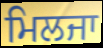
ਮਿਲਜਾ